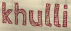
khulli